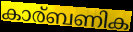
കാര്ബണിക